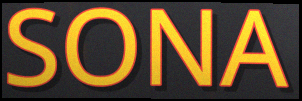
SONA